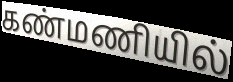
கண்மணியில்